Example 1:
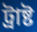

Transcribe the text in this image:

ট্ৰাষ্ট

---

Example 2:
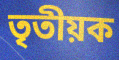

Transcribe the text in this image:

তৃতীয়ক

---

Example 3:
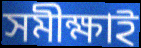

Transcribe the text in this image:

সমীক্ষাই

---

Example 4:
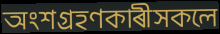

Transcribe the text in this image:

অংশগ্ৰহণকাৰীসকলে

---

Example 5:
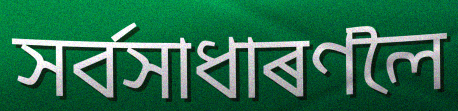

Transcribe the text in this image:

সৰ্বসাধাৰণলৈ